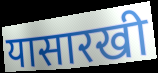
यासारखी